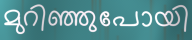
മുറിഞ്ഞുപോയി